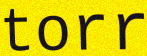
torr